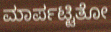
ಮಾರ್ಪಟ್ಟಿತೋ